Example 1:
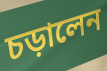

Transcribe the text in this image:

চড়ালেন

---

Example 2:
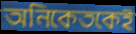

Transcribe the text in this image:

অনিকেতকেই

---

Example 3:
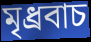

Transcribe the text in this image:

মৃধ্রবাচ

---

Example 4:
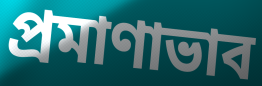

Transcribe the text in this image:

প্রমাণাভাব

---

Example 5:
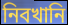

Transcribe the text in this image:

নিবখানি